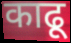
काढू